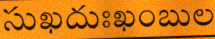
సుఖదుఃఖంబుల